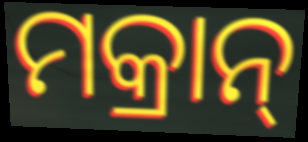
ମକ୍ରାନ୍